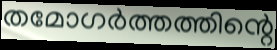
തമോഗർത്തത്തിന്റെ